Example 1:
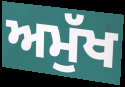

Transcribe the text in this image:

ਅਮੁੱਖ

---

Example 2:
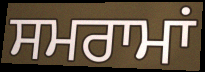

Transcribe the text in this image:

ਸਮਰਾਮਾਂ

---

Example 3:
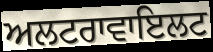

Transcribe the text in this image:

ਅਲਟਰਾਵਾਇਲਟ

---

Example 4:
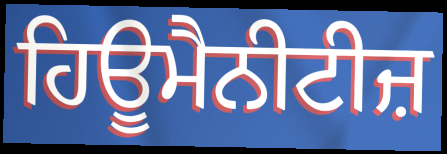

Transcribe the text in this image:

ਹਿਊਮੈਨੀਟੀਜ਼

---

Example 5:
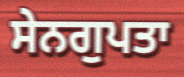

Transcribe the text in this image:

ਸੇਨਗੁਪਤਾ